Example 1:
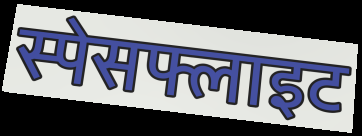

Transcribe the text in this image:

स्पेसफ्लाइट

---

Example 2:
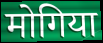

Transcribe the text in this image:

मोगिया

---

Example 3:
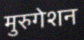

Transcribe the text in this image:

मुरुगेशन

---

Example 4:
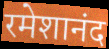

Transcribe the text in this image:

रमेशानंद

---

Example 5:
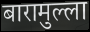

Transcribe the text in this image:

बारामुल्‍ला